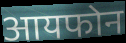
आयफोन